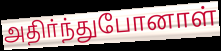
அதிர்ந்துபோனாள்